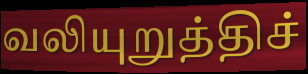
வலியுறுத்திச்